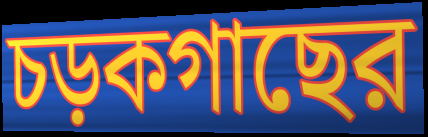
চড়কগাছের